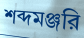
শব্দমঞ্জরি